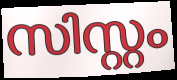
സിസ്റ്റം